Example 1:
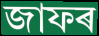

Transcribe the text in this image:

জাফৰ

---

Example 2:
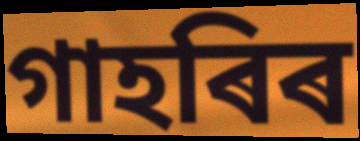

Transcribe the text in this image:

গাহৰিৰ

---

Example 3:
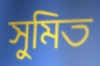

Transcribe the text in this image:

সুমিত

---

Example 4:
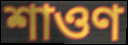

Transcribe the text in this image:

শাওণ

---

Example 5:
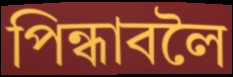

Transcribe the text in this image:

পিন্ধাবলৈ